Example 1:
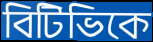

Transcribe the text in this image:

বিটিভিকে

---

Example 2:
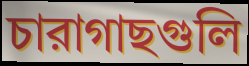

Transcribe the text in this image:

চারাগাছগুলি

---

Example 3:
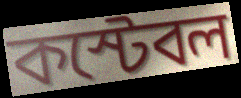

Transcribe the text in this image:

কস্টেবল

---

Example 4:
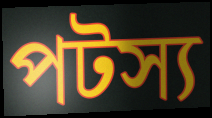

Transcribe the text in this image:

পটস্য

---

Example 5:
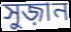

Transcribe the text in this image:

সুজ়ান